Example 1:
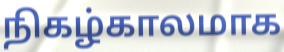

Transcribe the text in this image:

நிகழ்காலமாக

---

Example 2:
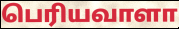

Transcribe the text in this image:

பெரியவாளா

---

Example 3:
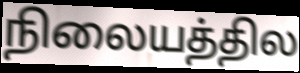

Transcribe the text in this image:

நிலையத்தில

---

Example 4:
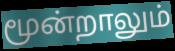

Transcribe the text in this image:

மூன்றாலும்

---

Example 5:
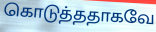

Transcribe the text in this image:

கொடுத்ததாகவே